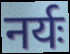
नर्यः